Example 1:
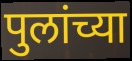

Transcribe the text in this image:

पुलांच्या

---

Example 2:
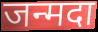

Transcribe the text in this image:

जन्मदा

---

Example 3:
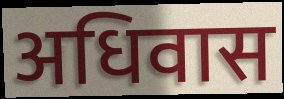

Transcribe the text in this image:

अधिवास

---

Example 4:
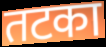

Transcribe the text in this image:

तटका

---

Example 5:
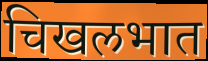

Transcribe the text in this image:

चिखलभात